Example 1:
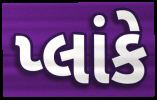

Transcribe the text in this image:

પ્લાંકે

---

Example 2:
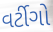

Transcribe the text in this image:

વર્ટીગો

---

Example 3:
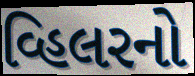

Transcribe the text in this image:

વ્હિલરનો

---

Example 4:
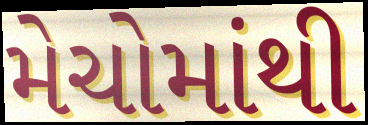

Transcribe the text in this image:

મેચોમાંથી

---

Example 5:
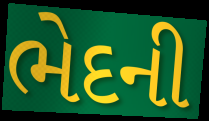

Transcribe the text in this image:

ભેદની